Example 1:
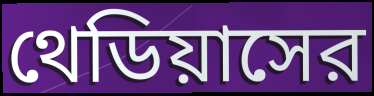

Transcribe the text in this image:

থেডিয়াসের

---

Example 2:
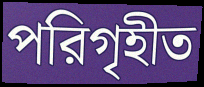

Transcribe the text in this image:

পরিগৃহীত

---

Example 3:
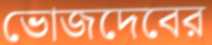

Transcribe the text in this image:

ভোজদেবের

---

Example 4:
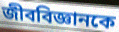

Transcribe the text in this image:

জীববিজ্ঞানকে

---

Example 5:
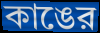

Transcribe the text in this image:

কাঙের